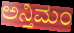
ಅನ್ತಿಮಂ